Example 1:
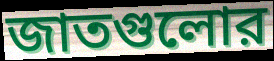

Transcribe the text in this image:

জাতগুলোর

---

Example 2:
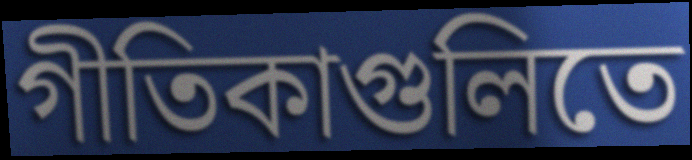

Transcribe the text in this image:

গীতিকাগুলিতে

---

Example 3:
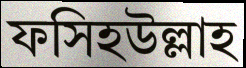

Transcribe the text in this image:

ফসিহউল্লাহ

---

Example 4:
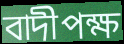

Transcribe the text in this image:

বাদীপক্ষ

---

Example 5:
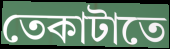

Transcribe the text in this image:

তেকাটাতে